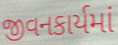
જીવનકાર્યમાં